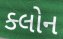
ક્લોન